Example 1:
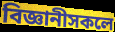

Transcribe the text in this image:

বিজ্ঞানীসকলে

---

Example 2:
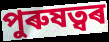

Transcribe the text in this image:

পুৰুষত্বৰ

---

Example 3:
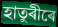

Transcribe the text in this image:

হাতুৰীৰে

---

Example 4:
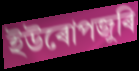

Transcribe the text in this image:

ইউৰোপজুৰি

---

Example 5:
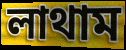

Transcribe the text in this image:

লাথাম